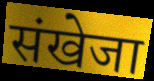
संखेजा